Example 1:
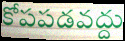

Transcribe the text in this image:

కోపపడవద్దు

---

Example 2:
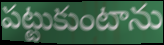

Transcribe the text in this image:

పట్టుకుంటాను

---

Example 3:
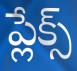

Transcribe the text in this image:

ప్లేక్స్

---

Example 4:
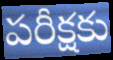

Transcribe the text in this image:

పరీక్షకు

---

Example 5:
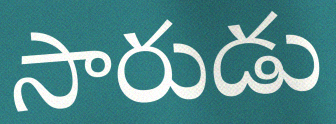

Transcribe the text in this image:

సారుడు